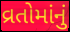
વ્રતોમાંનું